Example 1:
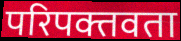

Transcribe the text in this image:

परिपक्तवता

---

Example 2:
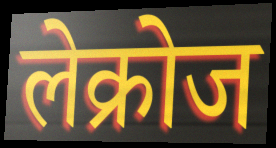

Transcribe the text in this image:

लेक्रोज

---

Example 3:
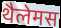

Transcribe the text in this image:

थैलेमस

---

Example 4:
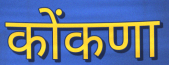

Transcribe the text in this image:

कोंकणा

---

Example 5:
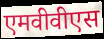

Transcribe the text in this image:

एमवीवीएस